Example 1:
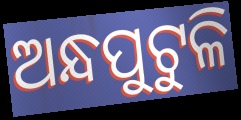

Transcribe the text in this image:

ଅନ୍ଧପୁଟୁଳି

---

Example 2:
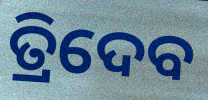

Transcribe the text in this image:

ତ୍ରିଦେବ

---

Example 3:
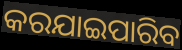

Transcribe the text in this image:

କରଯାଇପାରିବ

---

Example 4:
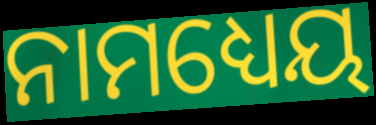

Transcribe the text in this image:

ନାମଧ୍ୟେୟ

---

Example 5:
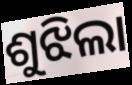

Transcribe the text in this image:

ଶୁଝିଲା